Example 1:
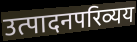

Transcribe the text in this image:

उत्पादनपरिव्यय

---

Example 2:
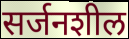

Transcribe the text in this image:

सर्जनशील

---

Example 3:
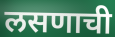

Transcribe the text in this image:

लसणाची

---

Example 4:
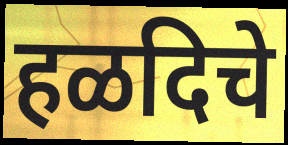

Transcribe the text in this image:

हळदिचे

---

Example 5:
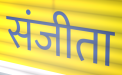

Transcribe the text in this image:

संजीता